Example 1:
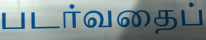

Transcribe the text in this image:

படர்வதைப்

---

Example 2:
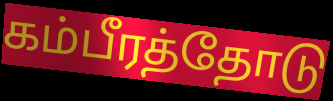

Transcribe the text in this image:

கம்பீரத்தோடு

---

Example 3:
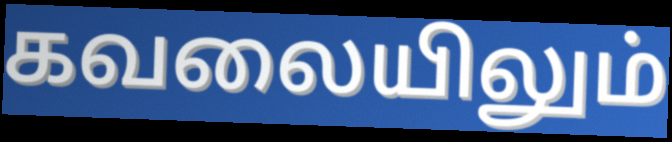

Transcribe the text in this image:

கவலையிலும்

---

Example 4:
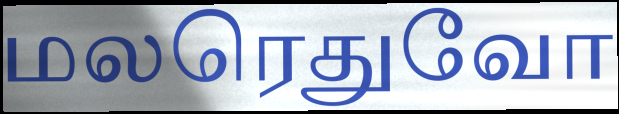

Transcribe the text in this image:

மலரெதுவோ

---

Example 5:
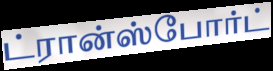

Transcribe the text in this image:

ட்ரான்ஸ்போர்ட்